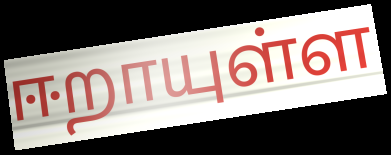
ஈறாயுள்ள